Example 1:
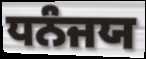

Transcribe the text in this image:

ਧਨੰਜਯ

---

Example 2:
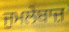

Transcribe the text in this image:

ਜੁਮਲੇਬਾਜ਼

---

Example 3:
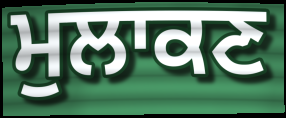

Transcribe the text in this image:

ਮੁਲਾਕਣ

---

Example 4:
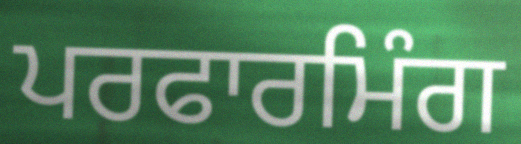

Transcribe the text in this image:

ਪਰਫਾਰਮਿੰਗ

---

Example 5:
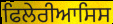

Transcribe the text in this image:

ਫਿਲੇਰੀਆਸਿਸ